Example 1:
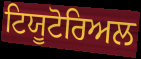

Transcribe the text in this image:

ਟਿਯੂਟੋਰਿਅਲ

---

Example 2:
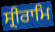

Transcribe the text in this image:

ਸ੍ਰੀਰਾਮਿ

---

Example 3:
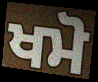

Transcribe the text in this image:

ਖਮੋ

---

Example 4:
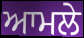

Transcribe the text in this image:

ਆਮਲੇ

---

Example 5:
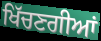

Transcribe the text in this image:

ਖਿੱਚਣਗੀਆਂ